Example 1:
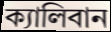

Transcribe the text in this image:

ক্যালিবান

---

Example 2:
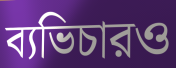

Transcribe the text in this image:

ব্যভিচারও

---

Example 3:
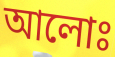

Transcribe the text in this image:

আলোঃ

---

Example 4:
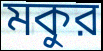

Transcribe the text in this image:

মকুর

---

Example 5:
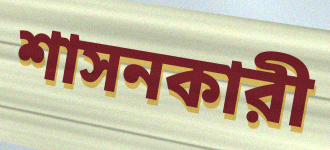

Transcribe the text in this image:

শাসনকারী